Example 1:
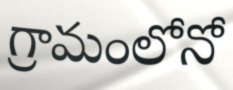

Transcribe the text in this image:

గ్రామంలోనో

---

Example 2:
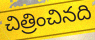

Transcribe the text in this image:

చిత్రించినది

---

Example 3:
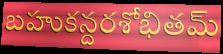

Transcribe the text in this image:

బహుకన్దరశోభితమ్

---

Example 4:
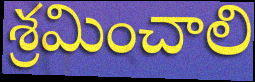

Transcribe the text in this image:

శ్రమించాలి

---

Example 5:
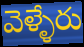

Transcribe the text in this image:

వెళ్ళేరు